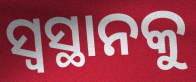
ସ୍ୱସ୍ଥାନକୁ